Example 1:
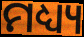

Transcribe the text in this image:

ମଧ୍ୟ୍ୟ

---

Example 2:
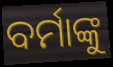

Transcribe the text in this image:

ବର୍ମାଙ୍କୁ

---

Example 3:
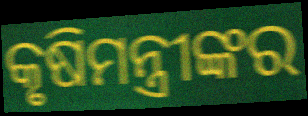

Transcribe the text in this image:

କୃଷିମନ୍ତ୍ରୀଙ୍କର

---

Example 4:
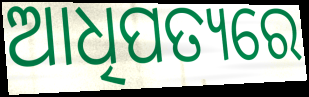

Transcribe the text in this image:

ଆଧିପତ୍ୟରେ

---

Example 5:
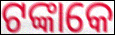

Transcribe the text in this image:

ଟଙ୍କାକେ